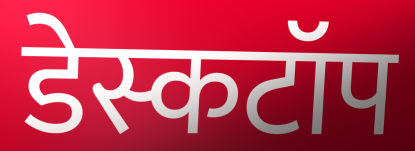
डेस्‍कटॉप